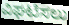
ವಿಘಟಿಸಲು